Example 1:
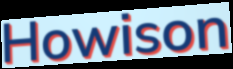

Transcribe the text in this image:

Howison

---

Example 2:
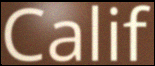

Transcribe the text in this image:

Calif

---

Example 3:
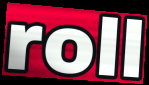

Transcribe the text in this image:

roll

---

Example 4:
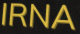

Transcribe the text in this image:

IRNA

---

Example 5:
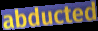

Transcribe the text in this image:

abducted